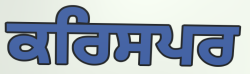
ਕਰਿਸਪਰ